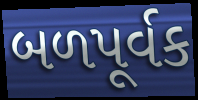
બળપૂર્વક